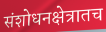
संशोधनक्षेत्रातच